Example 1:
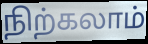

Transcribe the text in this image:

நிற்கலாம்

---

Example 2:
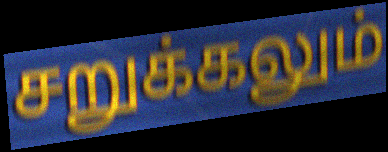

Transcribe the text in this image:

சறுக்கலும்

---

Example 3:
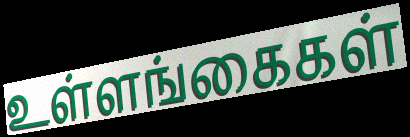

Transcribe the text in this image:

உள்ளங்கைகள்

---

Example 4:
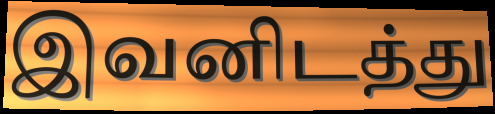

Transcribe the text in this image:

இவனிடத்து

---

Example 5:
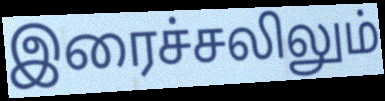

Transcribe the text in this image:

இரைச்சலிலும்